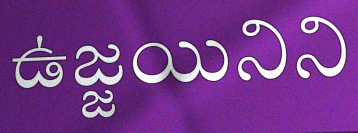
ఉజ్జయినిని